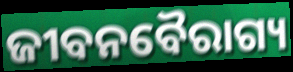
ଜୀବନବୈରାଗ୍ୟ